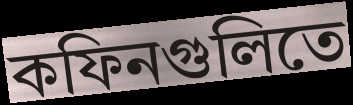
কফিনগুলিতে